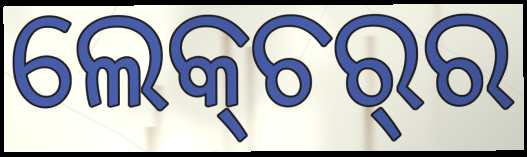
ଲେକ୍‌ଚର୍‌ର